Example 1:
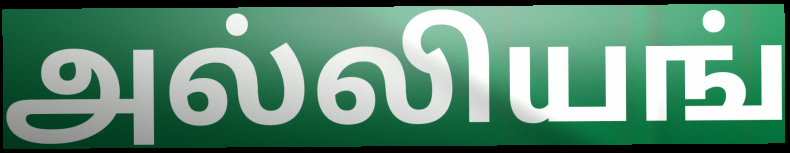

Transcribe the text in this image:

அல்லியங்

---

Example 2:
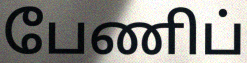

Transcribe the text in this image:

பேணிப்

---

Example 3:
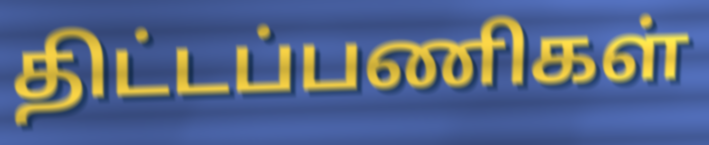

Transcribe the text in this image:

திட்டப்பணிகள்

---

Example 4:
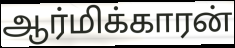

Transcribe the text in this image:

ஆர்மிக்காரன்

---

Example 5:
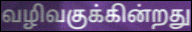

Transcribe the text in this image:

வழிவகுக்கின்றது